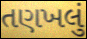
તણખલું